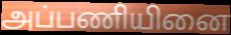
அப்பணியினை